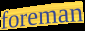
foreman